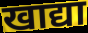
खाद्या